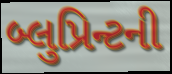
બ્લુપ્રિન્ટની